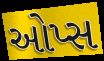
ઓપ્સ